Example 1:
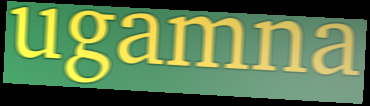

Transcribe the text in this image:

ugamna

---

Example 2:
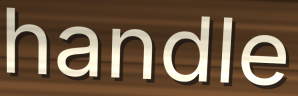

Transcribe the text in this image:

handle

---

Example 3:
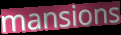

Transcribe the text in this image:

mansions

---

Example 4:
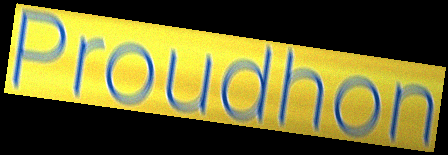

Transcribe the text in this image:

Proudhon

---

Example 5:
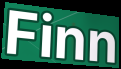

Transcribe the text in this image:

Finn